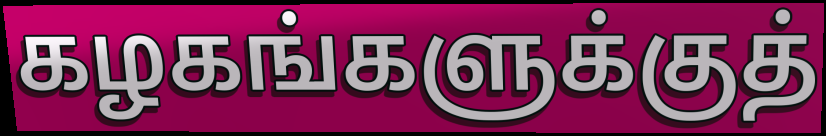
கழகங்களுக்குத்